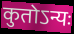
कुतोऽन्यः